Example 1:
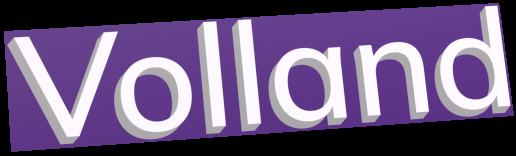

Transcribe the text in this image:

Volland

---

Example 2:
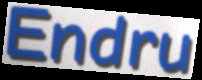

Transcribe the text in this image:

Endru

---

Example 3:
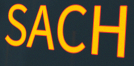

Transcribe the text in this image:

SACH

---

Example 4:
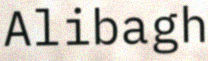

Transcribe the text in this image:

Alibagh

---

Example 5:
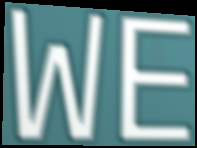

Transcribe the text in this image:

WE